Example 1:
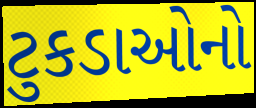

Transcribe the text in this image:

ટુકડાઓનો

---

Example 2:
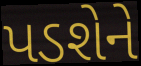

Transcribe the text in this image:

પડશેને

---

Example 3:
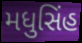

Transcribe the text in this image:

મધુસિંહ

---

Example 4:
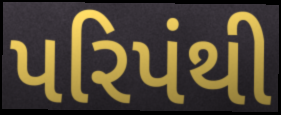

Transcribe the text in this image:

પરિપંથી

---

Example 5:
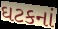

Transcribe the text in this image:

ઘટકનાં